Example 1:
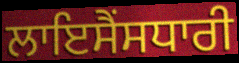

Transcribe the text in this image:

ਲਾਇਸੈਂਸਧਾਰੀ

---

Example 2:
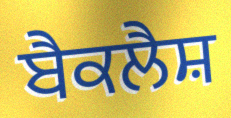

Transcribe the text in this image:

ਬੈਕਲੈਸ਼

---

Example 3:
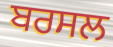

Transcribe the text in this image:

ਬਰਸਲ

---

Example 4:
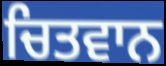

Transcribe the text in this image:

ਚਿਤਵਾਨ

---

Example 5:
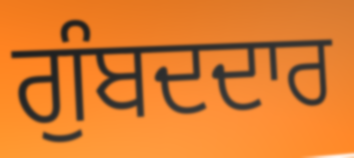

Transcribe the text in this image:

ਗੁੰਬਦਦਾਰ